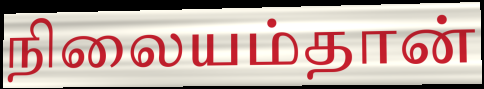
நிலையம்தான்